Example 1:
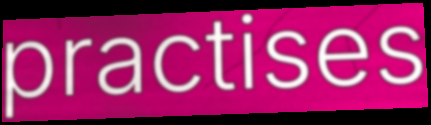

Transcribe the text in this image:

practises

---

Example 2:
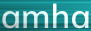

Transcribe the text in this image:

amha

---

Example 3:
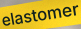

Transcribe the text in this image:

elastomer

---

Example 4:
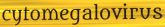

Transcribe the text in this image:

cytomegalovirus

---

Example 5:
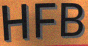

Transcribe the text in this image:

HFB